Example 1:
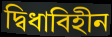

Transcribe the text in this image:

দ্বিধাবিহীন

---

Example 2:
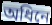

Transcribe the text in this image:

অধিনে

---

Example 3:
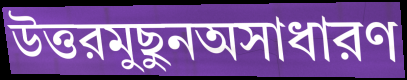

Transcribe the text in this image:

উত্তরমুছুনঅসাধারণ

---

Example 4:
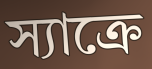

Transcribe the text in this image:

স্যাক্রে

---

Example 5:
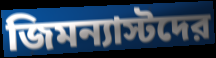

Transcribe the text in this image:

জিমন্যাস্টদের